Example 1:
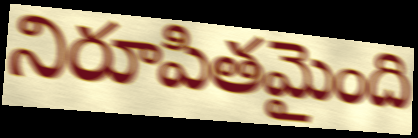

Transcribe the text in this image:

నిరూపితమైంది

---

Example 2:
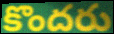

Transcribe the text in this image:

కొందరు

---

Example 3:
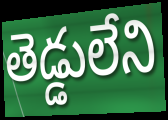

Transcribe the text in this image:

తెడ్డులేని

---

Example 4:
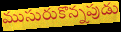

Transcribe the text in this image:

ముసురుకొన్నపుడు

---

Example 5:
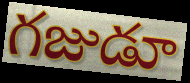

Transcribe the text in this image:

గజుడూ